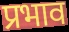
प्रभाव